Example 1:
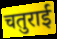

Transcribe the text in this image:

चतुराई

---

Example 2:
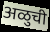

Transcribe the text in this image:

अळुची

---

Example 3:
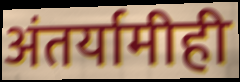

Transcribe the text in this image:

अंतर्यामीही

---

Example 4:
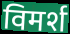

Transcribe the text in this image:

विमर्श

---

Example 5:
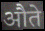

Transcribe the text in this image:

औते